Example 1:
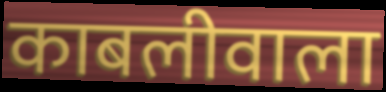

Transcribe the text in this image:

काबलीवाला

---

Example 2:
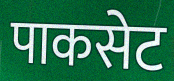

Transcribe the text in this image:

पाकसेट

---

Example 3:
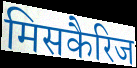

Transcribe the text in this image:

मिसकैरिज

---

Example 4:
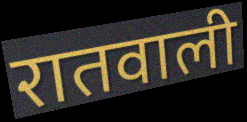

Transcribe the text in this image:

रातवाली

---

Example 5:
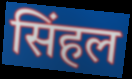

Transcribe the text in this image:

सिंहल